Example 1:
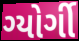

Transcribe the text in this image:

ગ્યોર્ગી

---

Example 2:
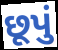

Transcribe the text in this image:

છૂપું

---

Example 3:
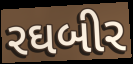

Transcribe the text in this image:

રઘબીર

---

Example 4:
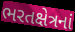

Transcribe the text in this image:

ભરતક્ષેત્રનાં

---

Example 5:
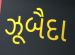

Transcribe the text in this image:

ઝૂબૈદા